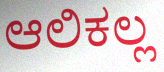
ಆಲಿಕಲ್ಲ